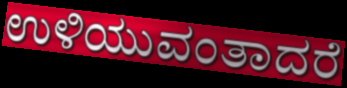
ಉಳಿಯುವಂತಾದರೆ